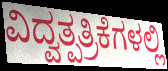
ವಿದ್ವತ್ಪತ್ರಿಕೆಗಳಲ್ಲಿ